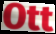
Ott